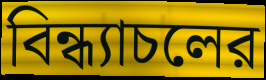
বিন্ধ্যাচলের